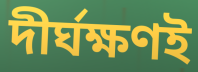
দীর্ঘক্ষণই